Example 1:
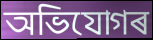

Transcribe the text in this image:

অভিযোগৰ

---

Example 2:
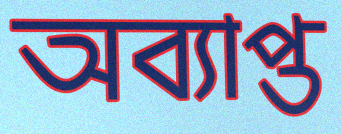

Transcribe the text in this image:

অব্যাপ্ত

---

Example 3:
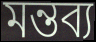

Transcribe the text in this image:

মন্তব্য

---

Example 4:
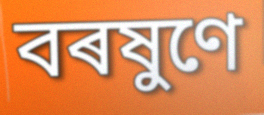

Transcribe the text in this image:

বৰষুণে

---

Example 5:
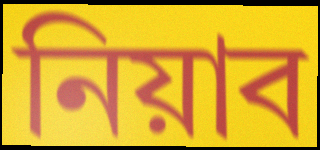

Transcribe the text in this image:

নিয়াব